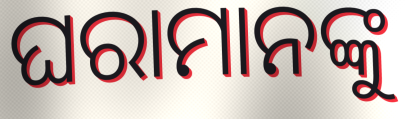
ଘରାମାନଙ୍କୁ